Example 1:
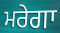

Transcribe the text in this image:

ਮਰੇਗਾ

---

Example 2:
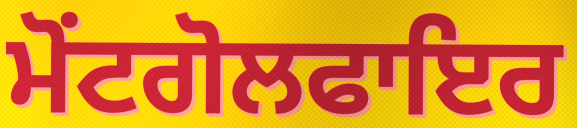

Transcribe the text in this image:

ਮੋਂਟਗੋਲਫਾਇਰ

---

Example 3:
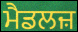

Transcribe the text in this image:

ਮੈਡਲਜ਼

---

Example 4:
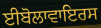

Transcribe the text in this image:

ਈਬੋਲਾਵਾਇਰਸ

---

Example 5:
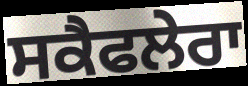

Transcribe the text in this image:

ਸਕੈਫਲੇਰਾ